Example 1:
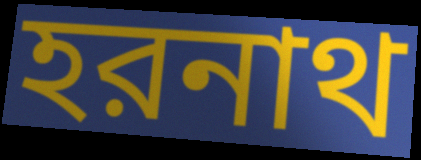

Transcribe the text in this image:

হরনাথ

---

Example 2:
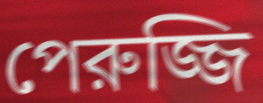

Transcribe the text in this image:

পেরুজ্জি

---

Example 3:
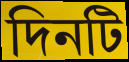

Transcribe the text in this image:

দিনটি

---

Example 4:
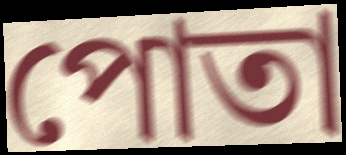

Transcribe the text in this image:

পোতা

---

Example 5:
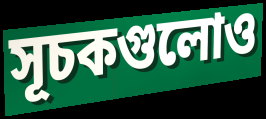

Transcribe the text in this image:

সূচকগুলোও